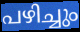
പഴിച്ചും